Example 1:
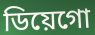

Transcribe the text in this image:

ডিয়েগো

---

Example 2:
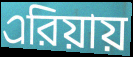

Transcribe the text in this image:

এরিয়ায়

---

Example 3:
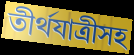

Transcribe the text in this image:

তীর্থযাত্রীসহ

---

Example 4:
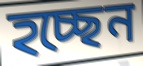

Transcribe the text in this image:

হচ্ছেন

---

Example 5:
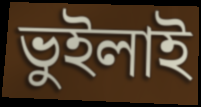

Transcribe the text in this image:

ভুইলাই